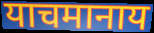
याचमानाय